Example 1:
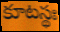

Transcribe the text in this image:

కూటస్థః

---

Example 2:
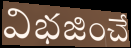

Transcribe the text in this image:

విభజించే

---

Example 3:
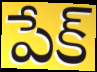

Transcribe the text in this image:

పేక్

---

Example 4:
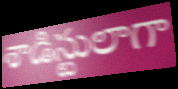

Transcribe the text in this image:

శాడిస్టులాగా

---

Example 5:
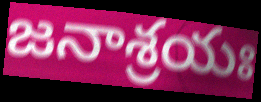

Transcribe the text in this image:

జనాశ్రయః